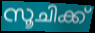
സൂചിക്ക്